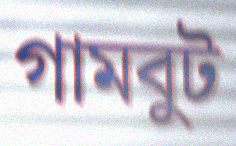
গামবুট